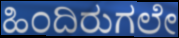
ಹಿಂದಿರುಗಲೇ